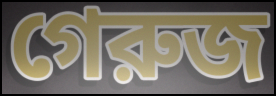
গেরুজ